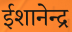
ईशानेन्द्र